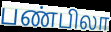
பண்பிலா